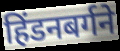
हिंडनबर्गने